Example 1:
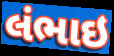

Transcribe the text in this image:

લંભાઇ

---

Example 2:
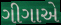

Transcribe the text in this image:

ગીગાએ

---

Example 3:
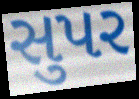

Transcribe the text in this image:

સુપર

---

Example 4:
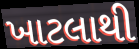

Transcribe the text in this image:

ખાટલાથી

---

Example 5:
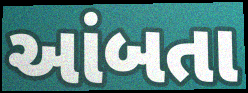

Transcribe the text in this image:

આંબતા